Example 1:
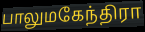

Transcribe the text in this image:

பாலுமகேந்திரா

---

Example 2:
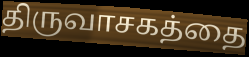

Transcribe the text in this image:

திருவாசகத்தை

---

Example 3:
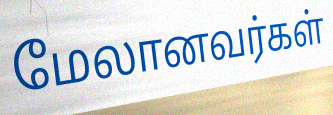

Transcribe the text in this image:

மேலானவர்கள்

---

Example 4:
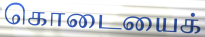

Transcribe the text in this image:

கொடையைக்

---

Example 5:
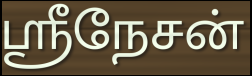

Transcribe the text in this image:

ஸ்ரீநேசன்